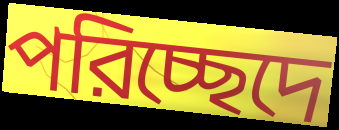
পরিচ্ছেদে